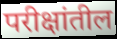
परीक्षांतील